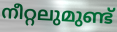
നീറ്റലുമുണ്ട്